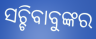
ସଚ୍ଚିବାବୁଙ୍କର